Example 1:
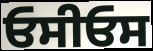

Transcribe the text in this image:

ਓਸੀਓਸ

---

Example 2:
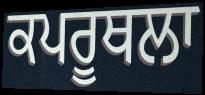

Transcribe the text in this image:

ਕਪਰੂਥਲਾ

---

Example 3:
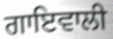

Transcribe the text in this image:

ਗਾਇਵਾਲੀ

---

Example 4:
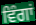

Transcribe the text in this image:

ਵਿੰਗਾਂ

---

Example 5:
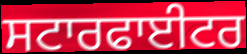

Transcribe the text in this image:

ਸਟਾਰਫਾਈਟਰ